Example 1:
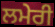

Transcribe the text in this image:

ਲਮੇਰੀ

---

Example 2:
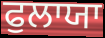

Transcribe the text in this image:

ਫੁਲਾਯਾ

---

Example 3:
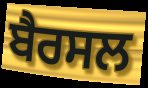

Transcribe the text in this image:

ਬੈਰਸਲ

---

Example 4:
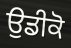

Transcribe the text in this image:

ਉਡੀਕੋ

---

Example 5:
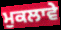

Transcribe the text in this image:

ਮੁਕਲਾਵੇ